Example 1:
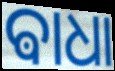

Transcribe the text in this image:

ଵାଧା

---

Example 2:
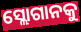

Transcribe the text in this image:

ସ୍ଲୋଗାନକୁ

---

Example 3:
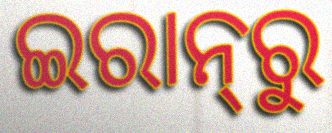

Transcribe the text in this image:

ଇରାନ୍‌ରୁ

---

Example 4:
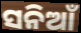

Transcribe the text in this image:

ସନିଆଁ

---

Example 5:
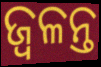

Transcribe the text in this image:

ଜ୍ଵଳନ୍ତ